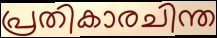
പ്രതികാരചിന്ത